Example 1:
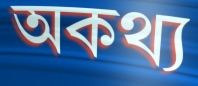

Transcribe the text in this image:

অকথ্য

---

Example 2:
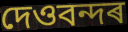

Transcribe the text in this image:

দেওবন্দৰ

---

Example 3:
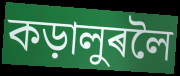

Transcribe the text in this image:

কড়ালুৰলৈ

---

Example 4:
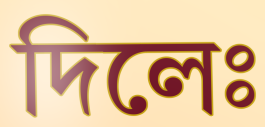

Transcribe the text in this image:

দিলেঃ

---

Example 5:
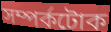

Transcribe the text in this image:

সম্পৰ্কটোক